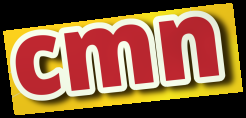
cmn